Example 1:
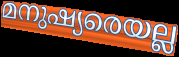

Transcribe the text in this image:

മനുഷ്യരെയല്ല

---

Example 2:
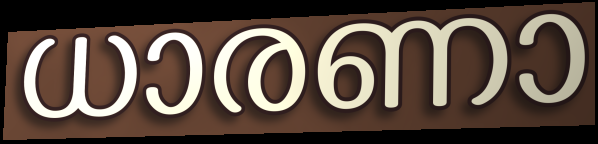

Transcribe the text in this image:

ധാരണാ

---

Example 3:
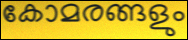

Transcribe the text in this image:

കോമരങ്ങളും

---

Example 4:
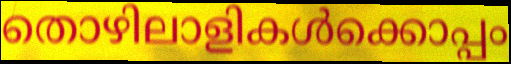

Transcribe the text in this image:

തൊഴിലാളികൾക്കൊപ്പം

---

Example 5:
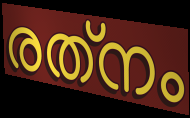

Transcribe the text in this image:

രത്‌നം